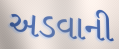
અડવાની